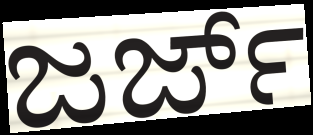
ಜರ್ಜ್